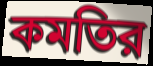
কমতির